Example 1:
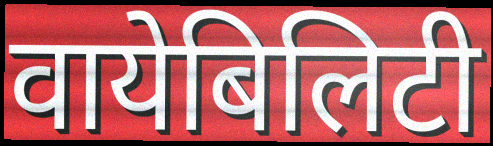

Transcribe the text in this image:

वायेबिलिटी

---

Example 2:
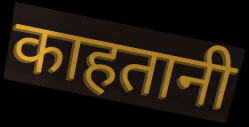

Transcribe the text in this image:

काहतानी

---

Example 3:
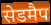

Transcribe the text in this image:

सेडमैप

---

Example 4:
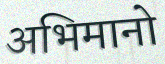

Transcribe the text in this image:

अभिमानो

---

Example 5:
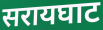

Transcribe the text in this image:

सरायघाट